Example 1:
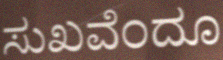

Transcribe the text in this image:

ಸುಖವೆಂದೂ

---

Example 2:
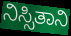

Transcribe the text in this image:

ನಿಸ್ಸಿತಾನಿ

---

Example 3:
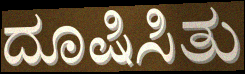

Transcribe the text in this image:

ದೂಷಿಸಿತು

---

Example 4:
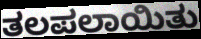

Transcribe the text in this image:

ತಲಪಲಾಯಿತು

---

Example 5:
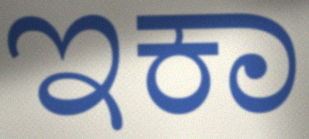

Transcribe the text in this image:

ಇಕಾ